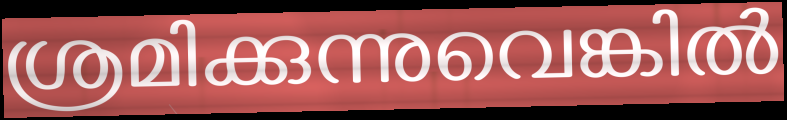
ശ്രമിക്കുന്നുവെങ്കിൽ